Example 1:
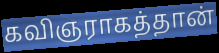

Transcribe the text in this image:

கவிஞராகத்தான்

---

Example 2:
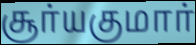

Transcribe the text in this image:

சூர்யகுமார்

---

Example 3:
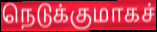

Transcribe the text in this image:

நெடுக்குமாகச்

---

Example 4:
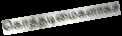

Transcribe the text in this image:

கொத்தடிமைகளாகச்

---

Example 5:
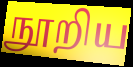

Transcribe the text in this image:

நூறிய